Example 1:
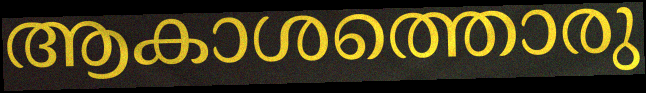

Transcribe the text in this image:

ആകാശത്തൊരു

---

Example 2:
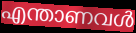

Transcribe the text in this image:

എന്താണവൾ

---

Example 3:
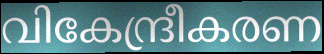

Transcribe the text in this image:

വികേന്ദ്രീകരണ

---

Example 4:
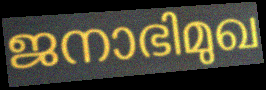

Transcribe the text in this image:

ജനാഭിമുഖ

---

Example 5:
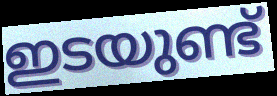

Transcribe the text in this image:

ഇടയുണ്ട്